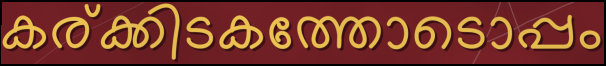
കര്ക്കിടകത്തോടൊപ്പം